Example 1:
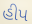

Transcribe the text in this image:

હીપ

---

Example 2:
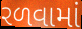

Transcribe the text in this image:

રળવામાં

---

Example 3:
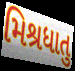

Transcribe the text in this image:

મિશ્રધાતુ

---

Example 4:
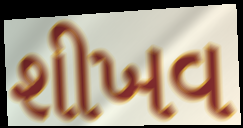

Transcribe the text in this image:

શીખવ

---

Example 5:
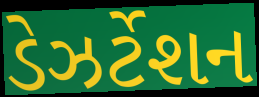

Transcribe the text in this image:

ડેઝર્ટેશન